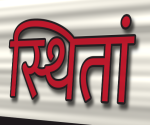
स्थितां